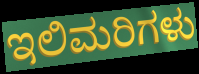
ಇಲಿಮರಿಗಳು